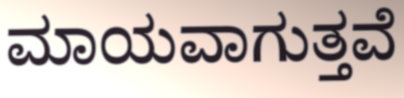
ಮಾಯವಾಗುತ್ತವೆ